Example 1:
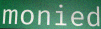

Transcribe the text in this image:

monied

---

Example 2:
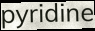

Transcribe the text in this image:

pyridine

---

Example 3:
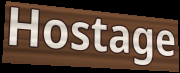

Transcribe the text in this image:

Hostage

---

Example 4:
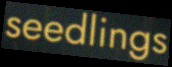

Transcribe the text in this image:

seedlings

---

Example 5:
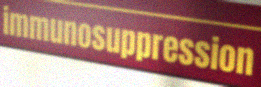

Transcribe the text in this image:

immunosuppression